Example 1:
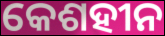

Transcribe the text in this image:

କେଶହୀନ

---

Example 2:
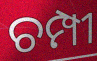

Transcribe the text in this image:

ଚମ୍ପୀ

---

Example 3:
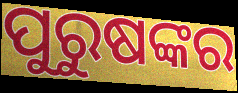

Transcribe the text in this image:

ପୁରୁଷଙ୍କର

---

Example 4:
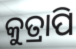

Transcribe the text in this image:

କୁତ୍ରାପି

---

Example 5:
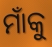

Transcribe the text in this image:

ମାଁକୁ